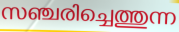
സഞ്ചരിച്ചെത്തുന്ന